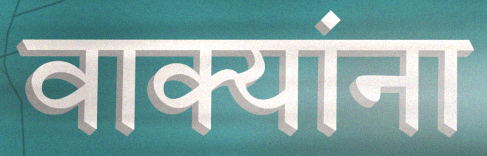
वाक्यांना